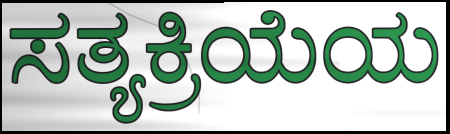
ಸತ್ಯಕ್ರಿಯೆಯ